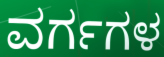
ವರ್ಗಗಳ